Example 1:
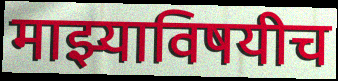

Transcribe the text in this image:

माझ्याविषयीच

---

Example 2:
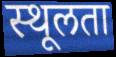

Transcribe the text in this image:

स्थूलता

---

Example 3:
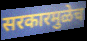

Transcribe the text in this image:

सरकारमुळेच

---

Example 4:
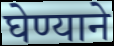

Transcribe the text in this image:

घेण्याने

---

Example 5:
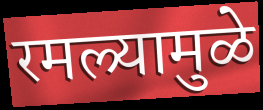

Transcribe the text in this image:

रमल्यामुळे